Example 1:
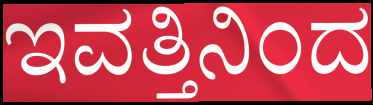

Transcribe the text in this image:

ಇವತ್ತಿನಿಂದ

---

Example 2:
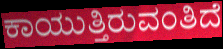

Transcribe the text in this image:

ಕಾಯುತ್ತಿರುವಂತಿದೆ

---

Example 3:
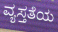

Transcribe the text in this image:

ವ್ಯಸ್ತತೆಯ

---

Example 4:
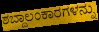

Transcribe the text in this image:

ಶಬ್ದಾಲಂಕಾರಗಳನ್ನು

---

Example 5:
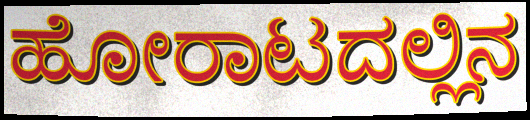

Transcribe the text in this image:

ಹೋರಾಟದಲ್ಲಿನ